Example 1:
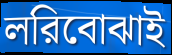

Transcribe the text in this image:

লরিবোঝাই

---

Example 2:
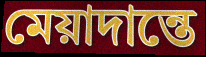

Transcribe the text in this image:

মেয়াদান্তে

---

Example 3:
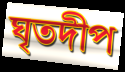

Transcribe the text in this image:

ঘৃতদীপ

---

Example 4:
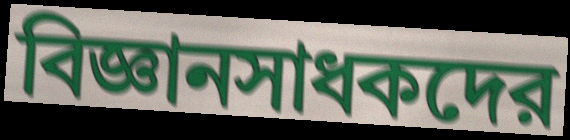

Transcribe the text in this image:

বিজ্ঞানসাধকদের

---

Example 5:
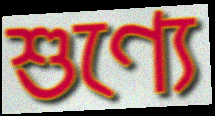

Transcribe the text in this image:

শুণ্যে